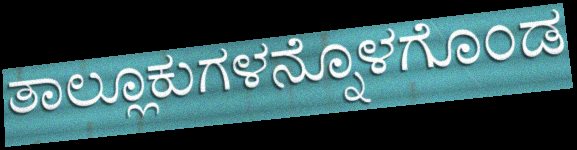
ತಾಲ್ಲೂಕುಗಳನ್ನೊಳಗೊಂಡ